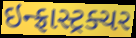
ઇન્ફ્રાસ્ટ્રક્ચર